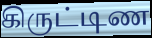
கிருட்டிண